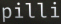
pilli